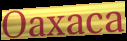
Oaxaca